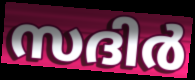
സദിർ